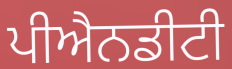
ਪੀਐਨਡੀਟੀ